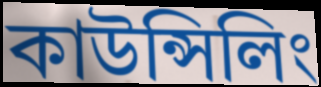
কাউন্সিলিং